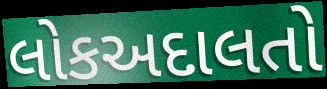
લોકઅદાલતો